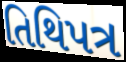
તિથિપત્ર